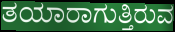
ತಯಾರಾಗುತ್ತಿರುವ